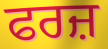
ਫਰਜ਼